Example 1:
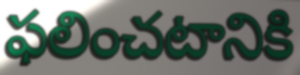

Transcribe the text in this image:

ఫలించటానికి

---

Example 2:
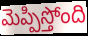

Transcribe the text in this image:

మెప్పిస్తోంది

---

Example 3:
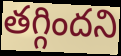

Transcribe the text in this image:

తగ్గిందని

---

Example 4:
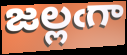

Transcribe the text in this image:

జల్లఁగా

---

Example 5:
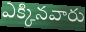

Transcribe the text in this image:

ఎక్కినవారు